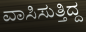
ವಾಸಿಸುತ್ತಿದ್ದ